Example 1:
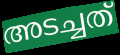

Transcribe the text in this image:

അടച്ചത്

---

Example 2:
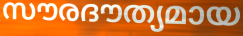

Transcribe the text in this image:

സൗരദൗത്യമായ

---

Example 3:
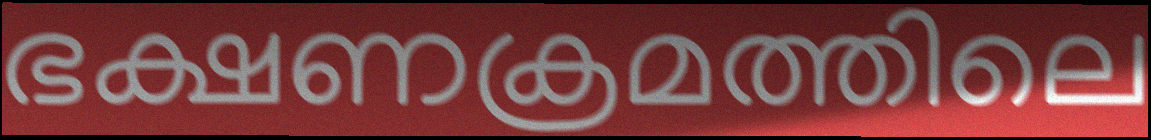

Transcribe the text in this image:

ഭക്ഷണക്രമത്തിലെ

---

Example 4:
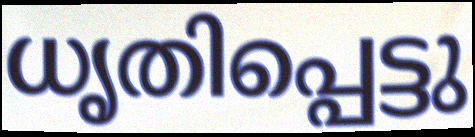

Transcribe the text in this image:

ധൃതിപ്പെട്ടു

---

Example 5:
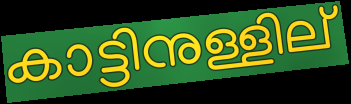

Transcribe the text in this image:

കാട്ടിനുള്ളില്